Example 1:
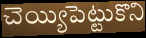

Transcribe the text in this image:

చెయ్యిపెట్టుకొని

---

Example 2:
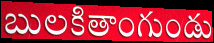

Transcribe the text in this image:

బులకితాంగుండు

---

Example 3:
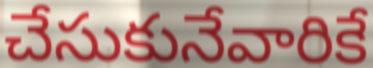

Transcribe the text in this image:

చేసుకునేవారికే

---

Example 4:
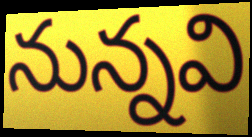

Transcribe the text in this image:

నున్నవి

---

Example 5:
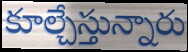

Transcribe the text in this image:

కూల్చేస్తున్నారు